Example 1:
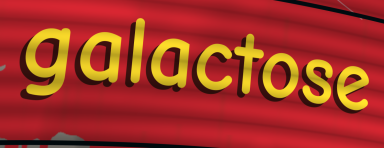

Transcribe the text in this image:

galactose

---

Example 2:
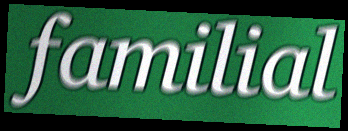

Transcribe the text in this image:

familial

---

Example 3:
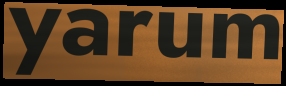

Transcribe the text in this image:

yarum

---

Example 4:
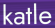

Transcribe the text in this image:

katle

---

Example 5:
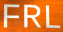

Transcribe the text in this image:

FRL